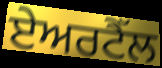
ਏਅਰਟੈੱਲ